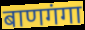
बाणगंगा